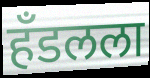
हँडलला